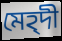
মেহ্দী